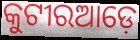
କୁଟୀରଆଡ଼େ